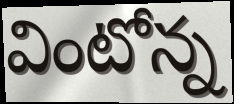
వింటోన్న